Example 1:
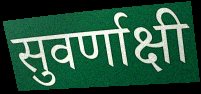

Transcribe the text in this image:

सुवर्णाक्षी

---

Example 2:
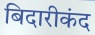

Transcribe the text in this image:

बिदारीकंद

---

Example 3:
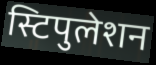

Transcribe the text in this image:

स्टिपुलेशन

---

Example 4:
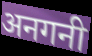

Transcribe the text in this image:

अनगनी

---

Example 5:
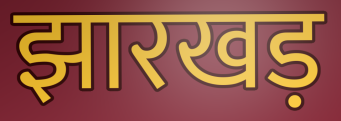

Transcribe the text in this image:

झारखड़